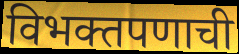
विभक्तपणाची